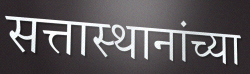
सत्तास्थानांच्या